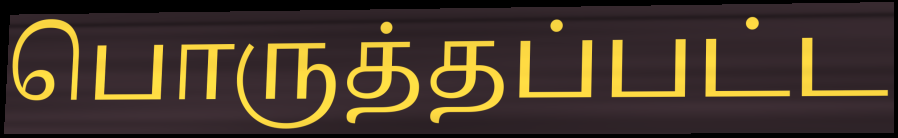
பொருத்தப்பட்ட